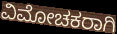
ವಿಮೋಚಕರಾಗಿ